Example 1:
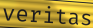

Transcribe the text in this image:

veritas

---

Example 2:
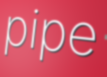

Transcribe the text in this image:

pipe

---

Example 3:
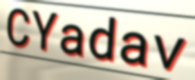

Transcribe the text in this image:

CYadav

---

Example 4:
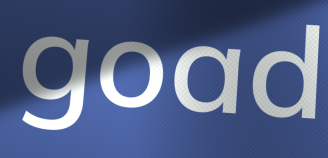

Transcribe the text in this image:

goad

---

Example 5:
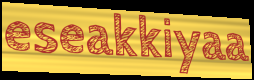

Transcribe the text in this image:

eseakkiyaa